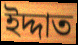
ইদ্দাত